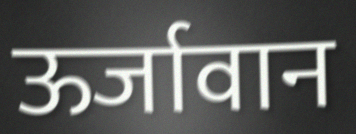
ऊर्जावान